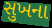
સુખના